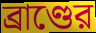
ব্রাণ্ডের